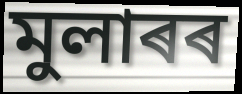
মুলাৰৰ